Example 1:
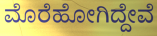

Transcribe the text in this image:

ಮೊರೆಹೋಗಿದ್ದೇವೆ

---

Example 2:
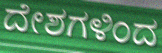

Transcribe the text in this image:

ದೇಶಗಳಿಂದ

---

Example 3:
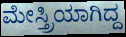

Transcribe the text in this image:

ಮೇಸ್ತ್ರಿಯಾಗಿದ್ದ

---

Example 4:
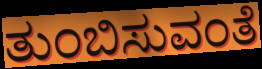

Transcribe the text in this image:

ತುಂಬಿಸುವಂತೆ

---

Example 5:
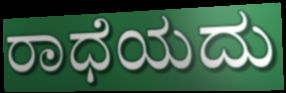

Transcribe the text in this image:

ರಾಧೆಯದು